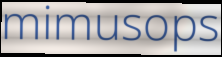
mimusops